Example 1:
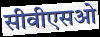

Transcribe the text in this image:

सीवीएसओ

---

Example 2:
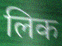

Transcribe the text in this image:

लिक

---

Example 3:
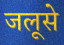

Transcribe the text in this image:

जलूसे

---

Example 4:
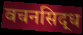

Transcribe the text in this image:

वचनसिद्ध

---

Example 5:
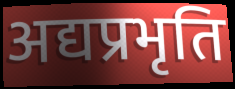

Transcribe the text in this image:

अद्यप्रभृति